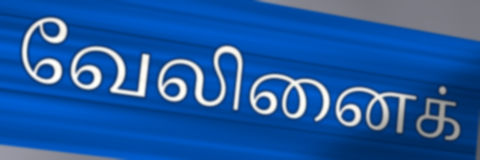
வேலினைக்